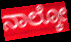
ನಾಲ್ಕೋ